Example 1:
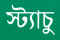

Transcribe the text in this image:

স্ট্যাচু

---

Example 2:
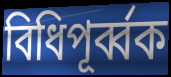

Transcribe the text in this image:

বিধিপূর্ব্বক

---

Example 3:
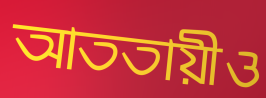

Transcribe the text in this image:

আততায়ীও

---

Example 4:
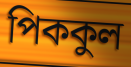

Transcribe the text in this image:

পিককুল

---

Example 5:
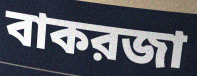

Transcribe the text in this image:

বাকরজা